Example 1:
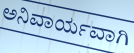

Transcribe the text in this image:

ಅನಿವಾರ್ಯವಾಗಿ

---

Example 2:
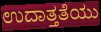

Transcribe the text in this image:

ಉದಾತ್ತತೆಯು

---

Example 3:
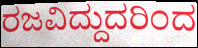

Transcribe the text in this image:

ರಜವಿದ್ದುದರಿಂದ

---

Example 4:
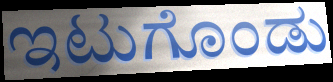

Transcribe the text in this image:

ಇಟುಗೊಂಡು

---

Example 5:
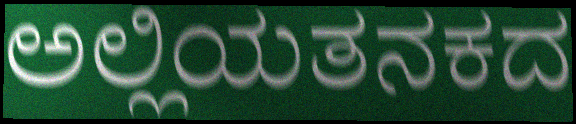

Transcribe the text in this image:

ಅಲ್ಲಿಯತನಕದ